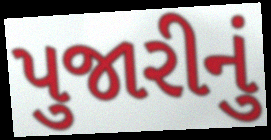
પુજારીનું